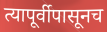
त्यापूर्वीपासूनच